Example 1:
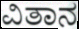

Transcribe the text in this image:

ವಿತಾನ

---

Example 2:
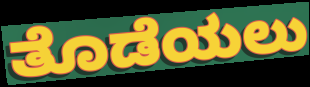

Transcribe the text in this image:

ತೊಡೆಯಲು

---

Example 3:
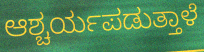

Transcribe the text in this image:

ಆಶ್ಚರ್ಯಪಡುತ್ತಾಳೆ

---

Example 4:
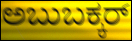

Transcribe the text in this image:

ಅಬುಬಕ್ಕರ್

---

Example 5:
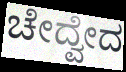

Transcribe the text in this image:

ಚೇದ್ವೇದ